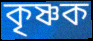
কৃষ্ণক